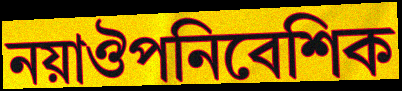
নয়াঔপনিবেশিক